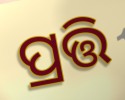
ପ୍ରତ୍ତି